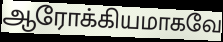
ஆரோக்கியமாகவே